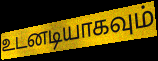
உடனடியாகவும்